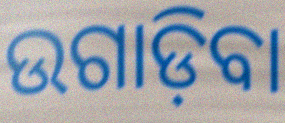
ଉଗାଡ଼ିବା